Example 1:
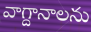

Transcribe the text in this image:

వాగ్దానాలను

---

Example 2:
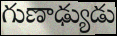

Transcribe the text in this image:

గుణాఢ్యుడు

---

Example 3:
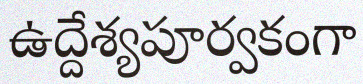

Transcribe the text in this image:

ఉద్దేశ్యపూర్వకంగా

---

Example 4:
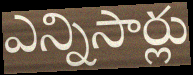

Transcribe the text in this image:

ఎన్నిసార్లు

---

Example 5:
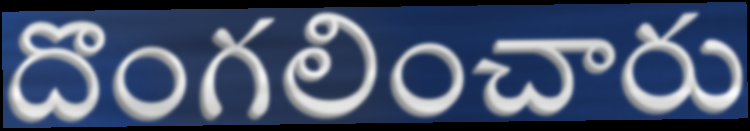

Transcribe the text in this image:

దొంగలించారు